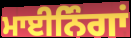
ਮਾਈਨਿੰਗਾਂ